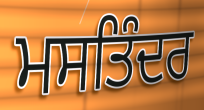
ਮਸਤਿੰਦਰ